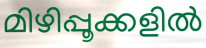
മിഴിപ്പൂക്കളിൽ